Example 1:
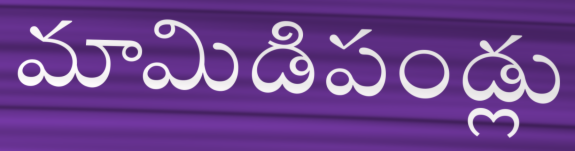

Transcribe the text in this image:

మామిడిపండ్లు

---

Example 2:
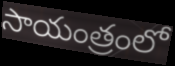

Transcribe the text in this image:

సాయంత్రంలో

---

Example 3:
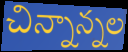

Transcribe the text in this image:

చిన్నాన్నల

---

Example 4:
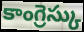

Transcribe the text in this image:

కాంగ్రెస్కు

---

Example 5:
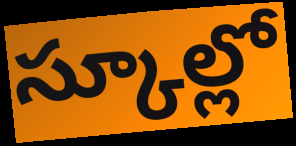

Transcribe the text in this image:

స్కూల్లో